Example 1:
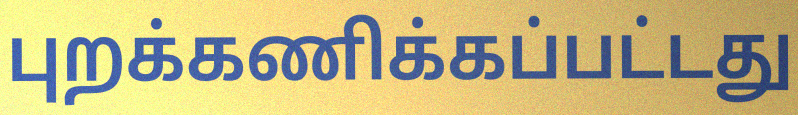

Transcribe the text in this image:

புறக்கணிக்கப்பட்டது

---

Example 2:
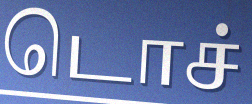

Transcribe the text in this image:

டொச்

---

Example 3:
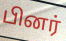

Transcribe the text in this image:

பினர்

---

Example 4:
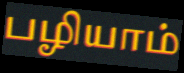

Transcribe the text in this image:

பழியாம்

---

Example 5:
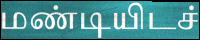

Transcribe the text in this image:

மண்டியிடச்